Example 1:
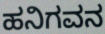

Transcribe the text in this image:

ಹನಿಗವನ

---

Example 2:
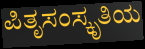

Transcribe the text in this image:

ಪಿತೃಸಂಸ್ಕೃತಿಯ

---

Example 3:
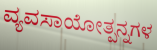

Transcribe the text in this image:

ವ್ಯವಸಾಯೋತ್ಪನ್ನಗಳ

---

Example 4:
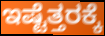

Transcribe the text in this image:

ಇಷ್ಟೆತ್ತರಕ್ಕೆ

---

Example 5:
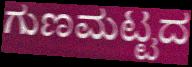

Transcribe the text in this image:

ಗುಣಮಟ್ಟದ